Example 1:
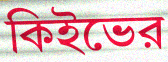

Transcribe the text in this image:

কিইভের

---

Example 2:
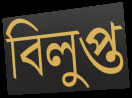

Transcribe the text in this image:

বিলুপ্ত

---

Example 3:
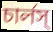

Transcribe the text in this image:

চার্লস্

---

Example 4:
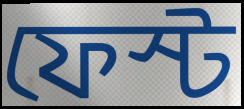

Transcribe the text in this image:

ফেস্ট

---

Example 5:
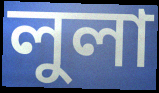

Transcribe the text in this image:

লুলা